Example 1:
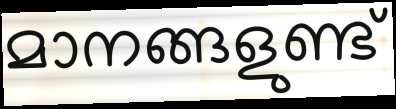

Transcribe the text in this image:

മാനങ്ങളുണ്ട്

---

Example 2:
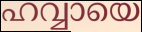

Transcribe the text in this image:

ഹവ്വായെ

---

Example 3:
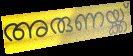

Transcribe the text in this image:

അരുണയ്ക്ക്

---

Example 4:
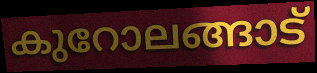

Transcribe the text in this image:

കുറോലങ്ങാട്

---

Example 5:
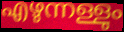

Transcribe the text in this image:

എഴുന്നള്ളും